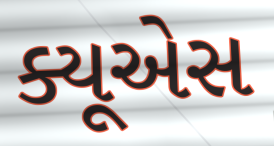
ક્યૂએસ